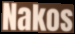
Nakos